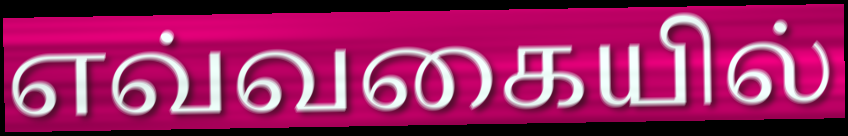
எவ்வகையில்